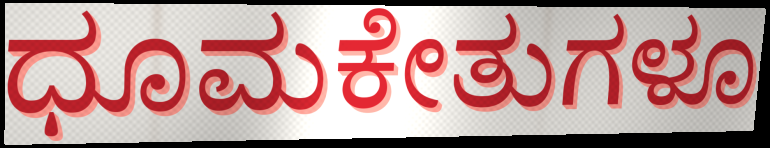
ಧೂಮಕೇತುಗಳೂ